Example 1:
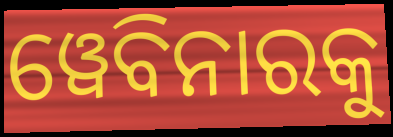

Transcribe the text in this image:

ୱେବିନାରକୁ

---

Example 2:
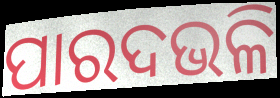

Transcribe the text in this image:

ପାରଦଭଳି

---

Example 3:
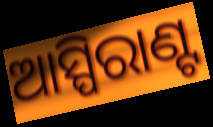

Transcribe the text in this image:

ଆସ୍ପିରାଣ୍ଟ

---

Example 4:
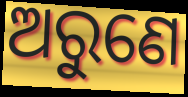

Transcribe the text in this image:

ଅରୁଣେ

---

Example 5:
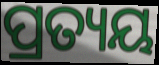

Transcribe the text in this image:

ପ୍ରତ୍ୟୟ